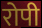
रोपी